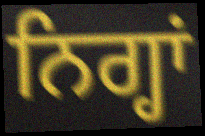
ਨਿਗ੍ਹਾਂ